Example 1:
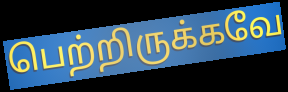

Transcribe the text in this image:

பெற்றிருக்கவே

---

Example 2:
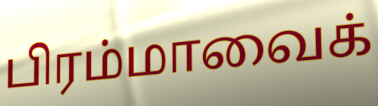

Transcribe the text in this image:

பிரம்மாவைக்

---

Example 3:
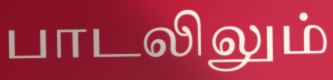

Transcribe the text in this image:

பாடலிலும்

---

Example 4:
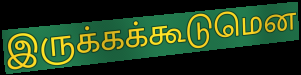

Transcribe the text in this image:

இருக்கக்கூடுமென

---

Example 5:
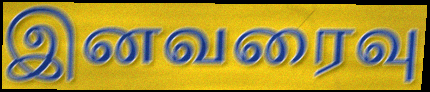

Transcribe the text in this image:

இனவரைவு